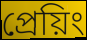
প্রেয়িং